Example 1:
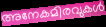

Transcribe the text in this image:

അനേകമിരവുകൾ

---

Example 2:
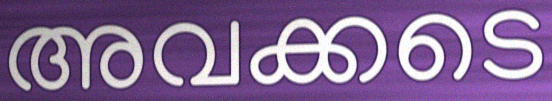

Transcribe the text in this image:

അവക്കടെ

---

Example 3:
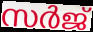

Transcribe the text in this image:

സർജ്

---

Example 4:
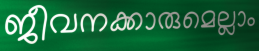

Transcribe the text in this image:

ജീവനക്കാരുമെല്ലാം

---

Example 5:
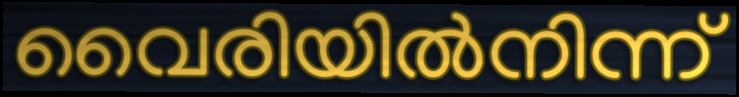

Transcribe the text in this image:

വൈരിയിൽനിന്ന്